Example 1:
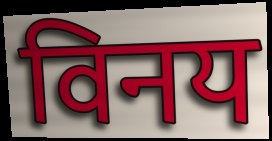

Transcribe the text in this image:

विनय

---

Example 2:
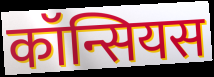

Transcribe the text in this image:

कॉन्सियस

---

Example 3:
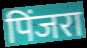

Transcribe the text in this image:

पिंजरा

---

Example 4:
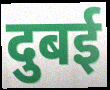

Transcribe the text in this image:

दुबई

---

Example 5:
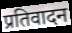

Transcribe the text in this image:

प्रतिवादन